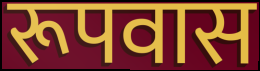
रूपवास